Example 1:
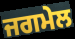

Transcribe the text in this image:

ਜਗਮੇਲ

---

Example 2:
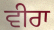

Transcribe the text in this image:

ਵੀਰਾ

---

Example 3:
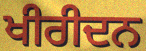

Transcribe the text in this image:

ਖੀਰੀਦਨ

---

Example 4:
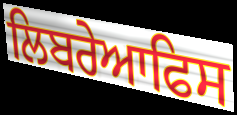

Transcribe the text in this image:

ਲਿਬਰੇਆਫਿਸ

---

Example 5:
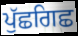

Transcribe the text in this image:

ਪੁੱਛਗਿਛ